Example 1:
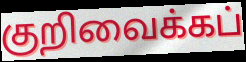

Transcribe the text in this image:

குறிவைக்கப்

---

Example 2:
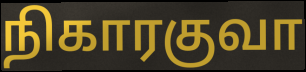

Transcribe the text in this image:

நிகாரகுவா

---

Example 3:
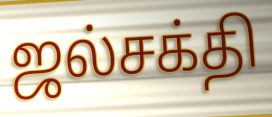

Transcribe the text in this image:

ஜல்சக்தி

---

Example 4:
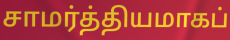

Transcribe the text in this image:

சாமர்த்தியமாகப்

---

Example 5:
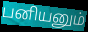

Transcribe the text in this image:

பனியனும்